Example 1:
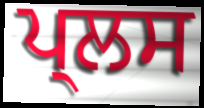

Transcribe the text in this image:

ਪ੍ਲਸ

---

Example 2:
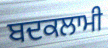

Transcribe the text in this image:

ਬਦਕਲਾਮੀ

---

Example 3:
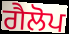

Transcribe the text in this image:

ਗੈਲੋਪ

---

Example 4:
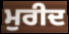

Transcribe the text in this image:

ਮੁਰੀਦ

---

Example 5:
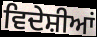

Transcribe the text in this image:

ਵਿਦੇਸ਼ੀਆਂ